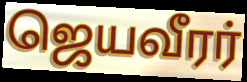
ஜெயவீரர்